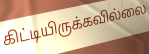
கிட்டியிருக்கவில்லை